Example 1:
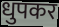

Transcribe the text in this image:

धुपकर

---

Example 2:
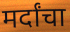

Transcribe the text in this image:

मर्दांचा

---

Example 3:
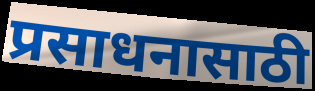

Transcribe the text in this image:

प्रसाधनासाठी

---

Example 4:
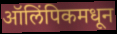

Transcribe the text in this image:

ऑलिंपिकमधून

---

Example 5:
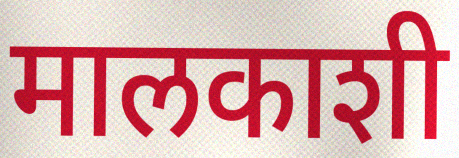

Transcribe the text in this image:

मालकाशी